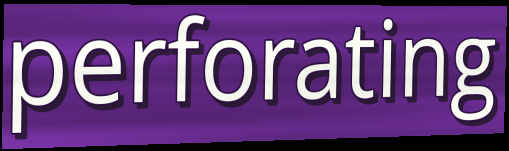
perforating